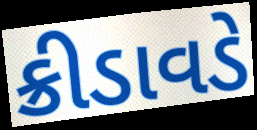
ક્રીડાવડે